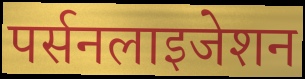
पर्सनलाइजेशन